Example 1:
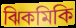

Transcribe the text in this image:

ঝিকমিকি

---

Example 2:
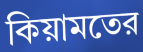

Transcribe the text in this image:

কিয়ামতের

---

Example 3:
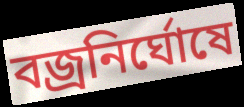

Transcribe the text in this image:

বজ্রনির্ঘোষে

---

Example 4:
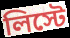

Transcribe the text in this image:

লিস্টে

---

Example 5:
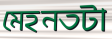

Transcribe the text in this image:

মেহনতটা